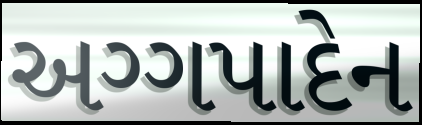
અગ્ગપાદેન